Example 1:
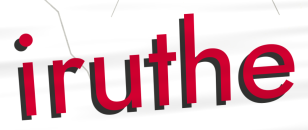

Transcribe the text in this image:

iruthe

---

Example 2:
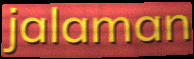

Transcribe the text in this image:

jalaman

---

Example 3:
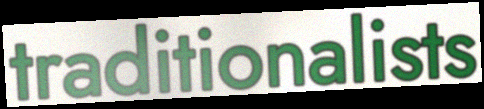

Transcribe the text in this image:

traditionalists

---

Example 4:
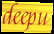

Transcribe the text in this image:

deepu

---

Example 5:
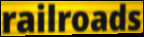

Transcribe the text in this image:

railroads